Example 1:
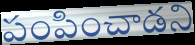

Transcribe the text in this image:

పంపించాడని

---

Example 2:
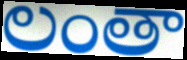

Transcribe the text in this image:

లంతా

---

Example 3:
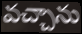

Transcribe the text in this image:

వచ్చాను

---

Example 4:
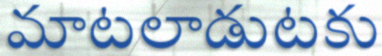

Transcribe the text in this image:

మాటలాడుటకు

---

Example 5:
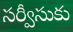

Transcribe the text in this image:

సర్వీసుకు